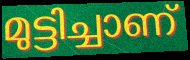
മുട്ടിച്ചാണ്